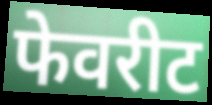
फेवरीट